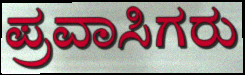
ಪ್ರವಾಸಿಗರು